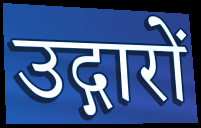
उद्गारों